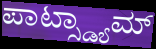
ಪಾಟ್ಸ್ಡ್ಯಾಮ್